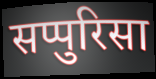
सप्पुरिसा